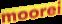
moorei